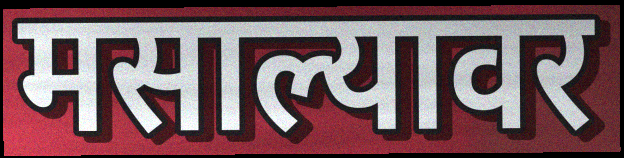
मसाल्यावर